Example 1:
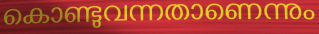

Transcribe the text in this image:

കൊണ്ടുവന്നതാണെന്നും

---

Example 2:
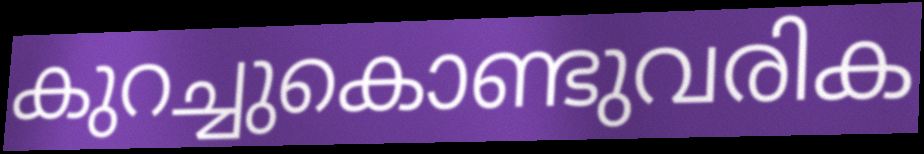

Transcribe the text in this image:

കുറച്ചുകൊണ്ടുവരിക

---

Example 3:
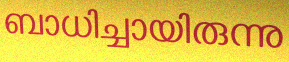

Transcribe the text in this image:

ബാധിച്ചായിരുന്നു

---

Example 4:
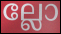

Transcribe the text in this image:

ല്ലോ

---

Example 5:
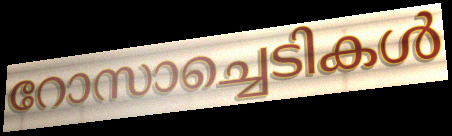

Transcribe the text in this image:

റോസാച്ചെടികൾ